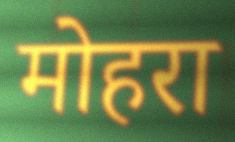
मोहरा